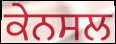
ਕੇਨਸਲ